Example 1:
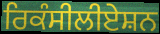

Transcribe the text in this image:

ਰਿਕੰਸੀਲੀਏਸ਼ਨ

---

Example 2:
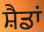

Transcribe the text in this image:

ਸ਼ੈਡਾਂ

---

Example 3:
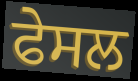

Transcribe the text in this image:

ਫੇਸਲ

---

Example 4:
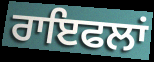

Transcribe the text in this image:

ਰਾਇਫਲਾਂ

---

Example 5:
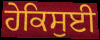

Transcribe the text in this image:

ਹੇਕਿਸੁਈ